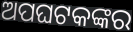
ଅପଘଟକଙ୍କର